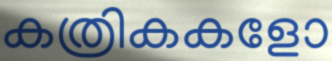
കത്രികകളോ